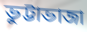
ভুট্টাভাজা